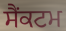
ਸੈੰਕਟਮ